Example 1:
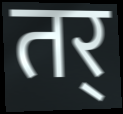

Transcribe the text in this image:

तर्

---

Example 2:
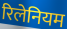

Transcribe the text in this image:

रिलेनियम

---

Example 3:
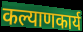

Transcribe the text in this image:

कल्याणकार्य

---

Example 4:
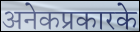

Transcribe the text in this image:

अनेकप्रकारके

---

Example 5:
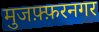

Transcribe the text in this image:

मुजफ़्फ़रनगर